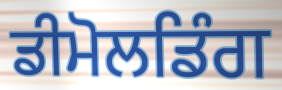
ਡੀਮੋਲਡਿੰਗ